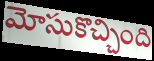
మోసుకొచ్చింది